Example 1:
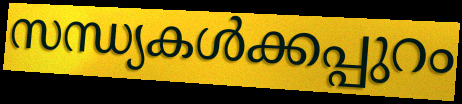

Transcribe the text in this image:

സന്ധ്യകൾക്കപ്പുറം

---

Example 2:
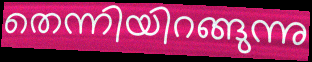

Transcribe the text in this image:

തെന്നിയിറങ്ങുന്നു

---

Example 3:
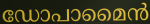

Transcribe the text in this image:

ഡോപാമൈൻ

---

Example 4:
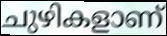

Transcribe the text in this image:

ചുഴികളാണ്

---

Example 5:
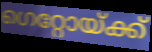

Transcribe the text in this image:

ഗെറ്റോയ്ക്ക്